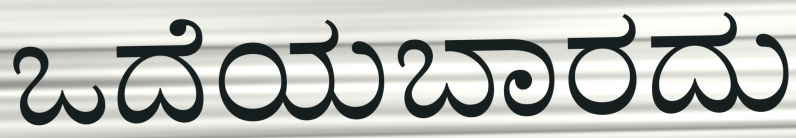
ಒದೆಯಬಾರದು